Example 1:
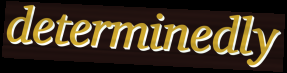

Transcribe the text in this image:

determinedly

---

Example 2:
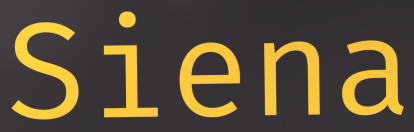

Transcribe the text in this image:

Siena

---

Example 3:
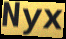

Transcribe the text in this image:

Nyx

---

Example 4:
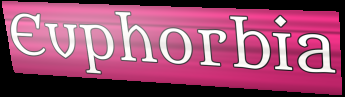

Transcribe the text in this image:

Euphorbia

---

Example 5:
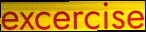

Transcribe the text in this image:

excercise